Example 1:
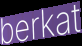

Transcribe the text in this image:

berkat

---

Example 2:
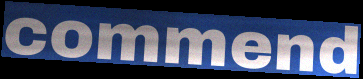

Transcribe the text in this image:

commend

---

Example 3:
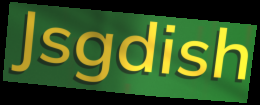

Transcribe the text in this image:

Jsgdish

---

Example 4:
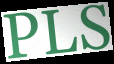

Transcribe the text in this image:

PLS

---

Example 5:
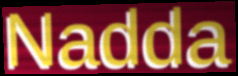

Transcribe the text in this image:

Nadda